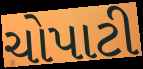
ચોપાટી